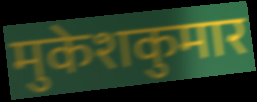
मुकेशकुमार